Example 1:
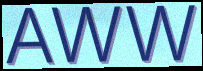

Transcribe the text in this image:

AWW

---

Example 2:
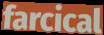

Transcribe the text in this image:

farcical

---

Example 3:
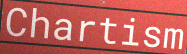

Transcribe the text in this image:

Chartism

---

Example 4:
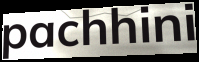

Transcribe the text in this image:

pachhini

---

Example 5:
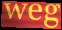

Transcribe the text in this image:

weg